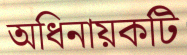
অধিনায়কটি